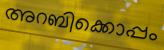
അറബിക്കൊപ്പം